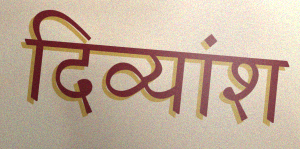
दिव्यांश